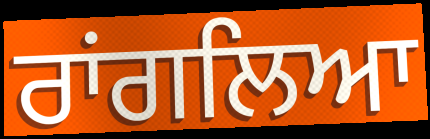
ਰਾਂਗਲਿਆ